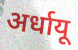
अर्धायू